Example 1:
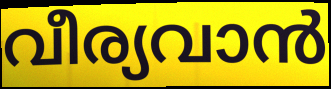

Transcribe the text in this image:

വീര്യവാൻ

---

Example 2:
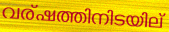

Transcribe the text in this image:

വര്ഷത്തിനിടയില്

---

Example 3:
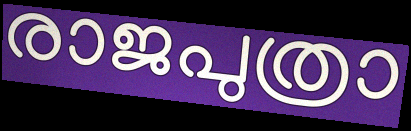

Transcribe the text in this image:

രാജപുത്രാ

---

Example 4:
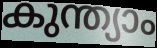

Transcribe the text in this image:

കുന്ത്യാം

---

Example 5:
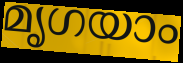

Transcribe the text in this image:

മൃഗയാം